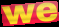
we